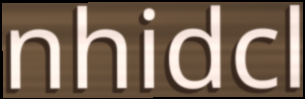
nhidcl